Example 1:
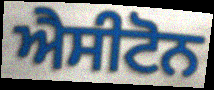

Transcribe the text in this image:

ਐਸੀਟੋਨ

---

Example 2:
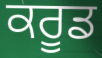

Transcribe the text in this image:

ਕਰੂਡ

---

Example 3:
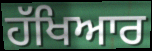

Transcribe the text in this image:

ਹੱਖਿਆਰ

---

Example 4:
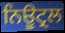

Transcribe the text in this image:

ਨਿਊਟ੍ਰਲ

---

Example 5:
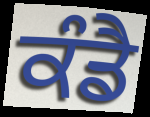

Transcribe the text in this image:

ਕੰਡੈ